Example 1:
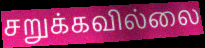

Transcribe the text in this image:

சறுக்கவில்லை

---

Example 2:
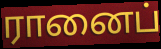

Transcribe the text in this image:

ரானைப்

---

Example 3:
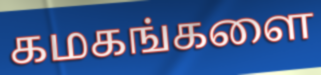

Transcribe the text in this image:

கமகங்களை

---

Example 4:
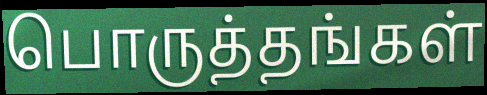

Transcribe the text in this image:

பொருத்தங்கள்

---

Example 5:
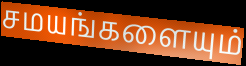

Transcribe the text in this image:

சமயங்களையும்